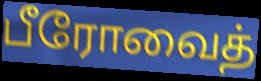
பீரோவைத்